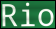
Rio